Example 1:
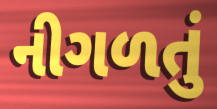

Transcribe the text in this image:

નીગળતું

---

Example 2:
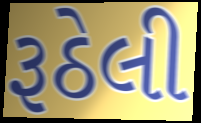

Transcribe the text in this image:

રૂઠેલી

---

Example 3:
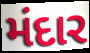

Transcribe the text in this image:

મંદાર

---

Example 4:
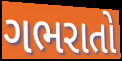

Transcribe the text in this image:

ગભરાતો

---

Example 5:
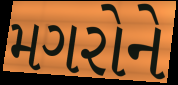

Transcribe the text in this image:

મગરોને